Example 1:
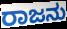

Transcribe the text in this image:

ರಾಜನು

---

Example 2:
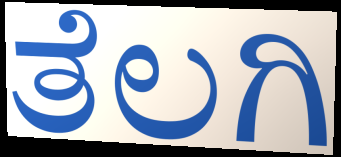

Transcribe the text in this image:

ತೆಲಗಿ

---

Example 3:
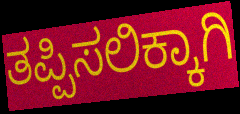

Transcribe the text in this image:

ತಪ್ಪಿಸಲಿಕ್ಕಾಗಿ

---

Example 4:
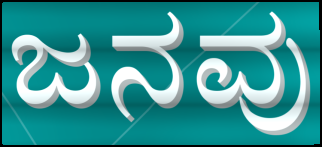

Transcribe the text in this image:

ಜನವು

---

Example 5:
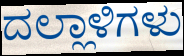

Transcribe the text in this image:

ದಲ್ಲಾಳಿಗಳು